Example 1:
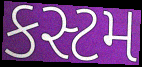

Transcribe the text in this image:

કસ્ટમ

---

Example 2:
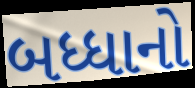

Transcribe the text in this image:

બધ્ધાનો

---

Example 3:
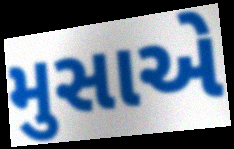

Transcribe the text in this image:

મુસાએ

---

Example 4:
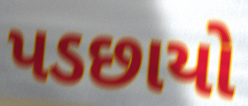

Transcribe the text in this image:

પડછાયો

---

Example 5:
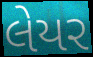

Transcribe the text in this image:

લેયર